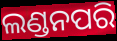
ଲଣ୍ଡନପରି